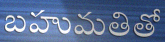
బహుమతితో